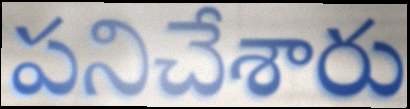
పనిచేశారు